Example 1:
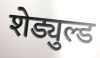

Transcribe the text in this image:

शेड्युल्ड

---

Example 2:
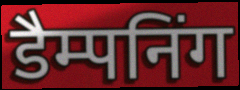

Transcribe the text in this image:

डैम्पनिंग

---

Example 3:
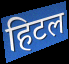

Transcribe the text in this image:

हिटल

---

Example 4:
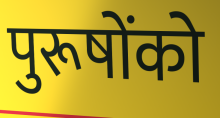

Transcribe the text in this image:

पुरूषोंको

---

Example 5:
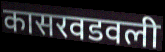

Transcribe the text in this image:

कासरवडवली